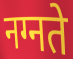
नग्नते